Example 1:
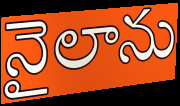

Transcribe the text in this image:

నైలాను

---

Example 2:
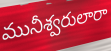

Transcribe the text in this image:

మునీశ్వరులారా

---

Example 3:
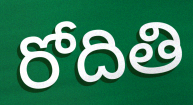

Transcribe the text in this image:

రోదితి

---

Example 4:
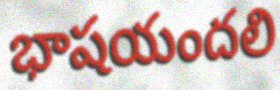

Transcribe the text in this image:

భాషయందలి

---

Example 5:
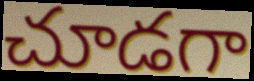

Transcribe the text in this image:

చూడగా